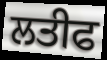
ਲਤੀਫ